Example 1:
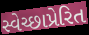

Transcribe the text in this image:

સ્વેચ્છાપ્રેરિત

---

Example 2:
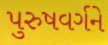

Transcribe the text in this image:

પુરુષવર્ગને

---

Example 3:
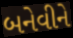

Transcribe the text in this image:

બનેવીને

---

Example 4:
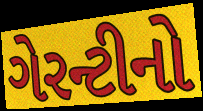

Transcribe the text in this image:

ગેરન્ટીનો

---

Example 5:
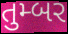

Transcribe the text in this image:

તુમ્બર